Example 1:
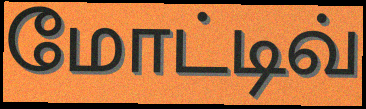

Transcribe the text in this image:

மோட்டிவ்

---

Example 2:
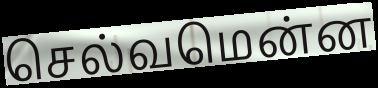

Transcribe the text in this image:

செல்வமென்ன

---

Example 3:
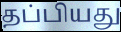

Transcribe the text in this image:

தப்பியது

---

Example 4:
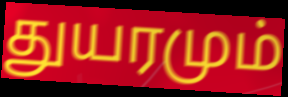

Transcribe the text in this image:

துயரமும்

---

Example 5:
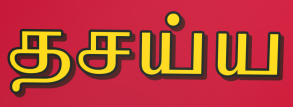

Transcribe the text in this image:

தசய்ய